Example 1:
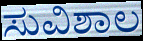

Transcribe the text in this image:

ಸುವಿಶಾಲ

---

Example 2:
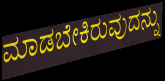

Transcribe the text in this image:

ಮಾಡಬೇಕಿರುವುದನ್ನು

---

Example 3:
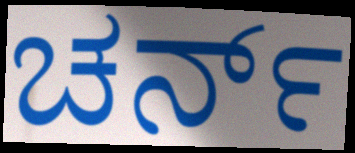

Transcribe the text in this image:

ಚರ್ನ್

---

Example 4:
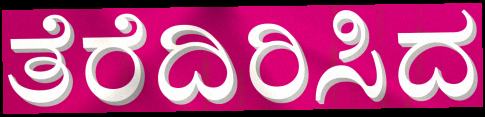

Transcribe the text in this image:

ತೆರೆದಿರಿಸಿದ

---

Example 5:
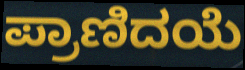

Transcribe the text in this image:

ಪ್ರಾಣಿದಯೆ